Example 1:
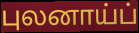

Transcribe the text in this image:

புலனாய்ப்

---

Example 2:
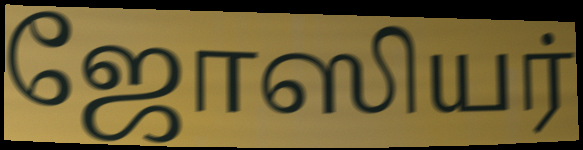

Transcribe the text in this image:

ஜோஸியர்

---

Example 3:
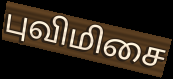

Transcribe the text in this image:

புவிமிசை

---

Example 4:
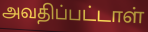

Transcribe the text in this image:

அவதிப்பட்டாள்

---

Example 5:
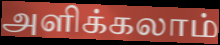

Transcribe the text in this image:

அளிக்கலாம்